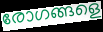
രോഗങ്ങളെ